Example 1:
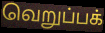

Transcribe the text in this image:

வெறுப்பக்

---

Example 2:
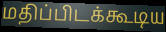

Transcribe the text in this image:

மதிப்பிடக்கூடிய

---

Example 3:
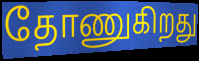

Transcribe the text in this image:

தோணுகிறது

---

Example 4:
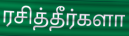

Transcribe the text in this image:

ரசித்தீர்களா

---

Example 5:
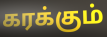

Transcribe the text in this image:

கரக்கும்